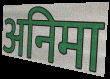
अनिमा